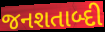
જનશતાબ્દી